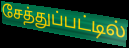
சேத்துப்பட்டில்